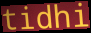
tidhi